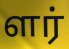
ளர்